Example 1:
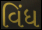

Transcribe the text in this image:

વિંધ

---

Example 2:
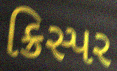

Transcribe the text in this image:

ક્રિસ્પર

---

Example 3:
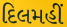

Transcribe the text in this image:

દિલમહીં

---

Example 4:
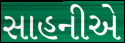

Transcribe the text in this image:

સાહનીએ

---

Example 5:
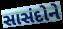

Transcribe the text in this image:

સાસંદોને